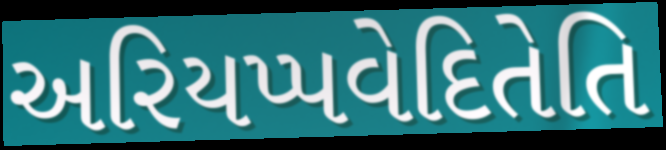
અરિયપ્પવેદિતેતિ